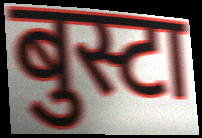
बुस्टा